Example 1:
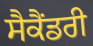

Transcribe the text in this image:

ਸੈਕੈਂਡਰੀ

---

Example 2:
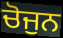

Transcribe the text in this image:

ਚੋਜੁਨ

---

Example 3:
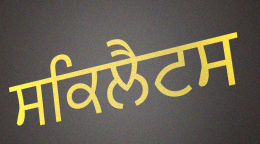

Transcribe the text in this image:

ਸਕਿਲੈਟਸ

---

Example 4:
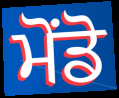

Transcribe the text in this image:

ਮੋਂਡੋ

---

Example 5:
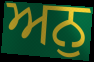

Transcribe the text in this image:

ਅਨੁ